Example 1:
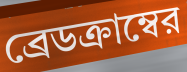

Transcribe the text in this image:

ব্রেডক্রাম্বের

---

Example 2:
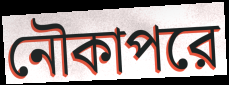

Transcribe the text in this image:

নৌকাপরে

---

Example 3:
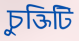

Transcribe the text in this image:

চুক্তিটি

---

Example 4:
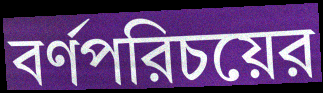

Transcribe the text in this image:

বর্ণপরিচয়ের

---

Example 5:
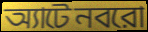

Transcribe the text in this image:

অ্যাটেনবরো